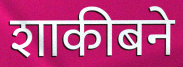
शाकीबने